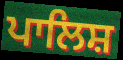
ਪਾਲਿਸ਼